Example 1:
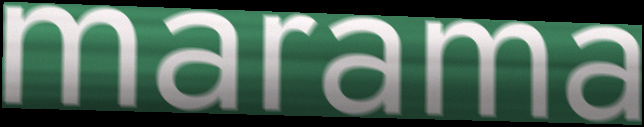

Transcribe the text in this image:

marama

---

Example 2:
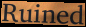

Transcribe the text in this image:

Ruined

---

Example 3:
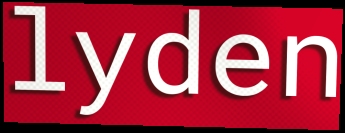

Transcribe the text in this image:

lyden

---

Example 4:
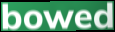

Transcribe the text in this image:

bowed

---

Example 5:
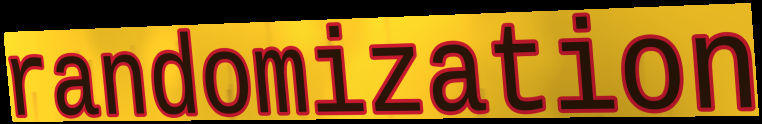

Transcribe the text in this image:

randomization